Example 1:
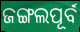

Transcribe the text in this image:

ଜଙ୍ଗଲପୂର୍ବ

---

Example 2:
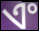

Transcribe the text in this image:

ଏଂ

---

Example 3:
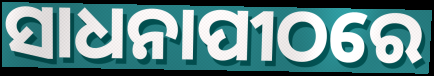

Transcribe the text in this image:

ସାଧନାପୀଠରେ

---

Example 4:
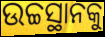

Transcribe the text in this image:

ଉଚ୍ଚସ୍ଥାନକୁ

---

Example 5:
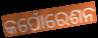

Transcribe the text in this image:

କର୍ପୋରେଶନ